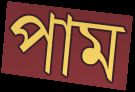
পাম